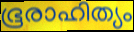
ഭൂരാഹിത്യം